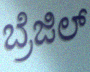
ಬ್ರೆಜಿಲ್